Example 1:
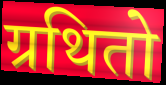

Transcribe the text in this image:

ग्रथितो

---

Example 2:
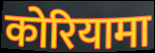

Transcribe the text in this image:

कोरियामा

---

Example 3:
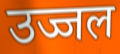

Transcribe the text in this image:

उज्जल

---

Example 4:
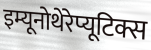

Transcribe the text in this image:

इम्यूनोथेरेप्यूटिक्स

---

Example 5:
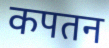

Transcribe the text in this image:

कपतन